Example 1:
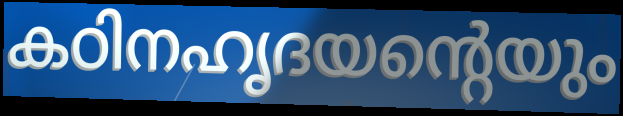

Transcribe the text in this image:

കഠിനഹൃദയന്റെയും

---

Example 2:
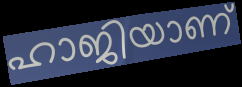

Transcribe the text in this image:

ഹാജിയാണ്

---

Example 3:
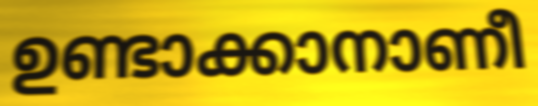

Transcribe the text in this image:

ഉണ്ടാക്കാനാണീ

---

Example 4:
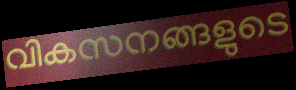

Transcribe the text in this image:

വികസനങ്ങളുടെ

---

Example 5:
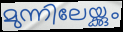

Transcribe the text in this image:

മുന്നിലേയ്ക്കും